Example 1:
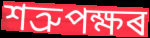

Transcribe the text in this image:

শত্ৰুপক্ষৰ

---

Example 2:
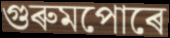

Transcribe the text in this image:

গুৰুমপোৰে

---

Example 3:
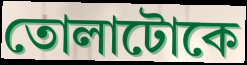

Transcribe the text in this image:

তোলাটোকে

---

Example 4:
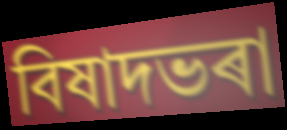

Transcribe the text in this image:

বিষাদভৰা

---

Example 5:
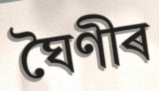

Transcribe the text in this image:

ঘৈণীৰ